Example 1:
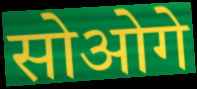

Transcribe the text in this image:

सोओगे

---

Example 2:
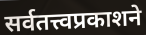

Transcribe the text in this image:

सर्वतत्त्वप्रकाशने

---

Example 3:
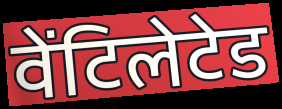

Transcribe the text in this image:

वेंटिलेटेड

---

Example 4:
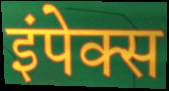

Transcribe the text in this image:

इंपेक्स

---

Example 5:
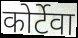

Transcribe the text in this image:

कोर्टेवा